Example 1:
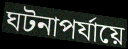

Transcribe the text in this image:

ঘটনাপর্যায়ে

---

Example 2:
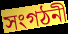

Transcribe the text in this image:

সংগঠনী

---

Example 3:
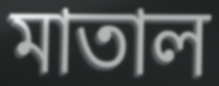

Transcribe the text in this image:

মাতাল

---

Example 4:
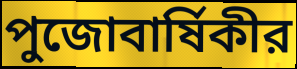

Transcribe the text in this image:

পুজোবার্ষিকীর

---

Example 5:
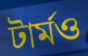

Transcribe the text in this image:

টার্মও